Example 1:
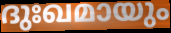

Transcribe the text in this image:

ദുഃഖമായും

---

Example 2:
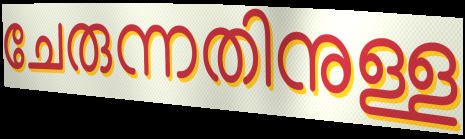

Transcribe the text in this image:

ചേരുന്നതിനുള്ള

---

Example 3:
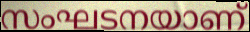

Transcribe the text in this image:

സംഘടനയാണ്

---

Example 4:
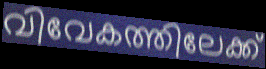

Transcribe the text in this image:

വിവേകത്തിലേക്ക്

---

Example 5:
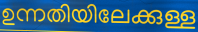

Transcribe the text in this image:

ഉന്നതിയിലേക്കുള്ള